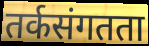
तर्कसंगतता